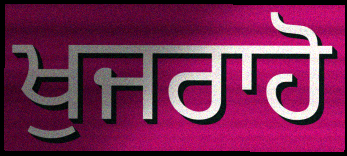
ਖੁਜਰਾਹੋ